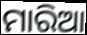
ମାରିଆ